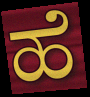
ಹೆ